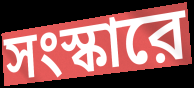
সংস্কারে